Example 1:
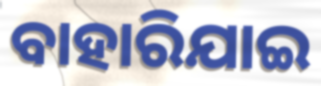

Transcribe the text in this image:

ବାହାରିଯାଇ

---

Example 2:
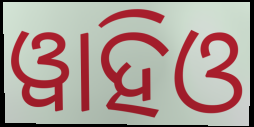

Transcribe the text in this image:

ୱାହିଓ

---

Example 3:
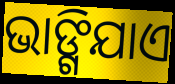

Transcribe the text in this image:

ଭାଙ୍ଗିଯାଏ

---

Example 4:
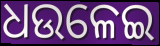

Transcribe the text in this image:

ଧଉଳେଇ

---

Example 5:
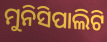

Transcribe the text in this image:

ମୁନିସିପାଲିଟି